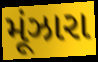
મૂંઝારા